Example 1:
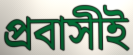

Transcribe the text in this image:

প্রবাসীই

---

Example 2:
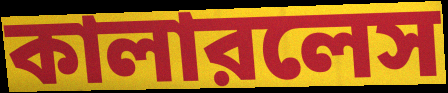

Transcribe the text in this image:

কালারলেস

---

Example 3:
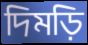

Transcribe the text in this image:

দিমড়ি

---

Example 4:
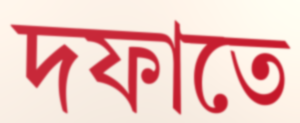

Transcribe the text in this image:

দফাতে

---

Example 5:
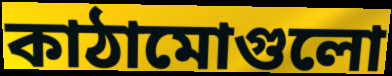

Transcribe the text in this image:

কাঠামোগুলো